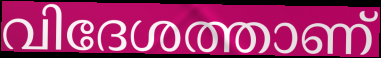
വിദേശത്താണ്